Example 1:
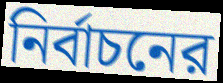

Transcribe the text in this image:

নির্বাচনের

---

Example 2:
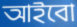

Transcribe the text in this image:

আইবো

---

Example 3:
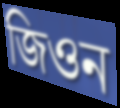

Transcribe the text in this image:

জিওন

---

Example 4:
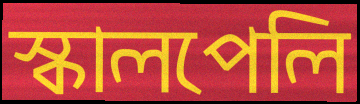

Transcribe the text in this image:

স্কালপেলি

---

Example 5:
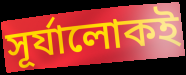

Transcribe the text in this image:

সূর্যালোকই